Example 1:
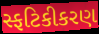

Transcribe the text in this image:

સ્ફટિકીકરણ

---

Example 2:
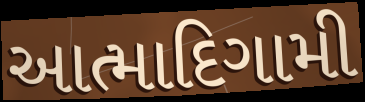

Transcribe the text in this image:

આત્માદિગામી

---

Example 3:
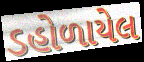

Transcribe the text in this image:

ડહોળાયેલ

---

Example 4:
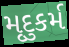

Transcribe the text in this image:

મૃદુકર્મ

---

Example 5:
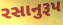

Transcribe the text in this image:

રસાનુરૂપ